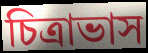
চিত্রাভাস